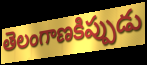
తెలంగాణకిప్పుడు